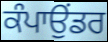
ਕੰਪਾਉਂਡਰ